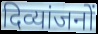
दिव्यांजनों